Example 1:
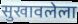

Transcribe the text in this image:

सुखावलेला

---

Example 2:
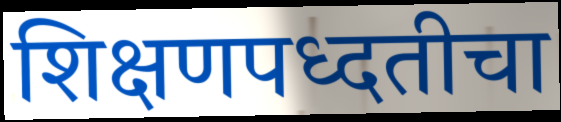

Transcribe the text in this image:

शिक्षणपध्दतीचा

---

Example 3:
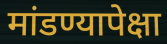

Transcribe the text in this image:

मांडण्यापेक्षा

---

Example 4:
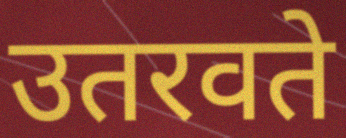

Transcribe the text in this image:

उतरवते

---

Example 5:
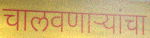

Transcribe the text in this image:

चालवणाऱ्यांचा